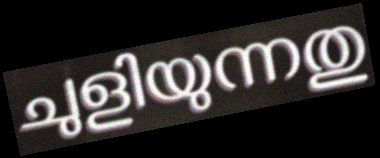
ചുളിയുന്നതു